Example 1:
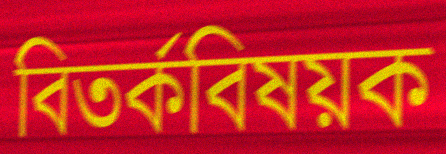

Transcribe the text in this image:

বিতর্কবিষয়ক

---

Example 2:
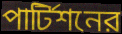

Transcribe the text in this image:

পার্টিশনের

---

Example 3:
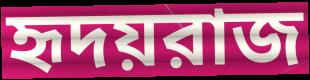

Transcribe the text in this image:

হৃদয়রাজ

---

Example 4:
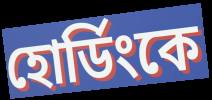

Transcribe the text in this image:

হোর্ডিংকে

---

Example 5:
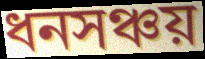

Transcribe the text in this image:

ধনসঞ্চয়